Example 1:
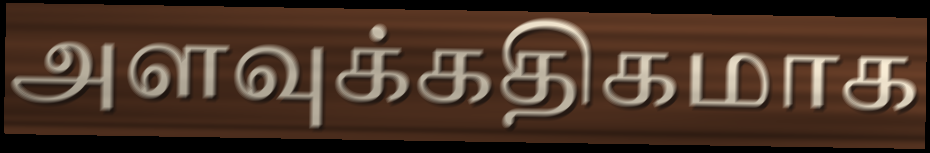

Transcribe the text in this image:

அளவுக்கதிகமாக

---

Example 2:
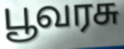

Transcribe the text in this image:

பூவரசு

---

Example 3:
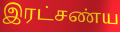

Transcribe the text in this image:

இரட்சண்ய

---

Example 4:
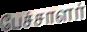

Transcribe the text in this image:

பேச்சாளர்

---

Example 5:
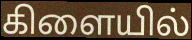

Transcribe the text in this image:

கிளையில்